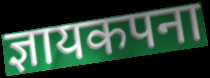
ज्ञायकपना